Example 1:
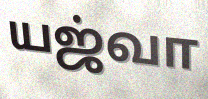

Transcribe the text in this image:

யஜ்வா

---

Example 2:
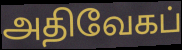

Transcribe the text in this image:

அதிவேகப்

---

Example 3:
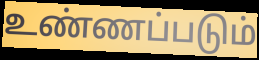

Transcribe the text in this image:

உண்ணப்படும்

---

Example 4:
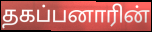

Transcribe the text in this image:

தகப்பனாரின்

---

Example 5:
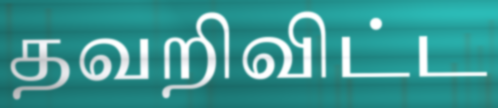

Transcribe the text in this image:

தவறிவிட்ட